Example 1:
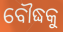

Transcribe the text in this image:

ବୌଦ୍ଧକୁ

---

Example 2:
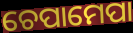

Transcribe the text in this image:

ଚେପାମେପା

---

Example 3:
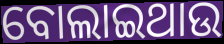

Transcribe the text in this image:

ବୋଲାଇଥାଉ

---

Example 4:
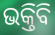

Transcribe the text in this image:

ଭକ୍ତିବି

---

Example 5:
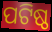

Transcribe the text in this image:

ପଟିଷ୍ଠ